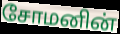
சோமனின்